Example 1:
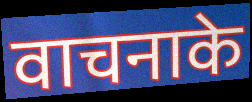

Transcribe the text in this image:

वाचनाके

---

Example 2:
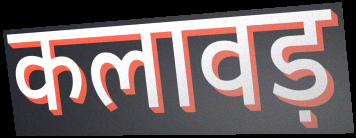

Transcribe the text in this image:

कलावड़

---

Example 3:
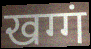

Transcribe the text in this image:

खग्गं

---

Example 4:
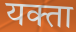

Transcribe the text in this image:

यक्ता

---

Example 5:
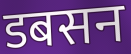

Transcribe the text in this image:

डबसन